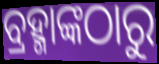
ବ୍ରହ୍ମାଙ୍କଠାରୁ